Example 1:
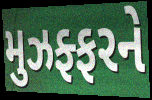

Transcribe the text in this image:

મુઝફ્ફરને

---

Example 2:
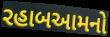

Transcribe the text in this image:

રહાબઆમનો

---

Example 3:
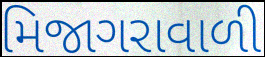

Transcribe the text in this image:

મિજાગરાવાળી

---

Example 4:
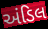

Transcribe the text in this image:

અંડિલ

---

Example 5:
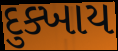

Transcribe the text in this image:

દુક્ખાય